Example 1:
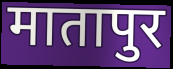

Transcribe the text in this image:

मातापुर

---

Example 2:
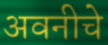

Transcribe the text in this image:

अवनीचे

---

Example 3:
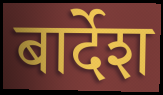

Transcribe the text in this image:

बार्देश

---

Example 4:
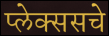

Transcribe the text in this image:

प्लेक्ससचे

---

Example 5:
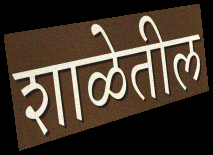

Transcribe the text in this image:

शाळेतील